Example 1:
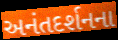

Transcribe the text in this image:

અનંતદર્શનના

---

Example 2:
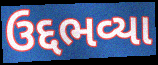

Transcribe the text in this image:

ઉદ્દભવ્યા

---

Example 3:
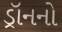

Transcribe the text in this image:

ડ્રૉનનો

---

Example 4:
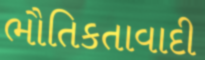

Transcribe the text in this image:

ભૌતિકતાવાદી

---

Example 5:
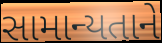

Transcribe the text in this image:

સામાન્યતાને